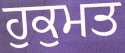
ਹੁਕੁਮਤ